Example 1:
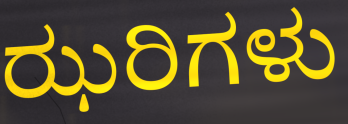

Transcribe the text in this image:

ಝರಿಗಳು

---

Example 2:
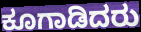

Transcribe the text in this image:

ಕೂಗಾಡಿದರು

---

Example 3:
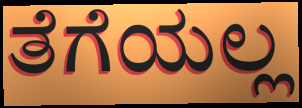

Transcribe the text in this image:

ತೆಗೆಯಲ್ಲ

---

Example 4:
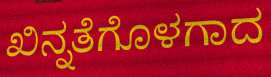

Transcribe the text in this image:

ಖಿನ್ನತೆಗೊಳಗಾದ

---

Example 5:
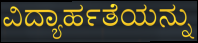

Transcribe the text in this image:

ವಿದ್ಯಾರ್ಹತೆಯನ್ನು